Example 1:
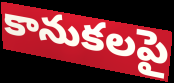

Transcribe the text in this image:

కానుకలపై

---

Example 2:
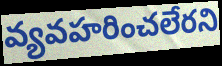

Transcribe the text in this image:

వ్యవహరించలేరని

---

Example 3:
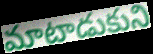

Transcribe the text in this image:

మాటాడుకుని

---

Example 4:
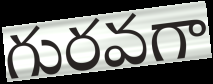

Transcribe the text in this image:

గురవగా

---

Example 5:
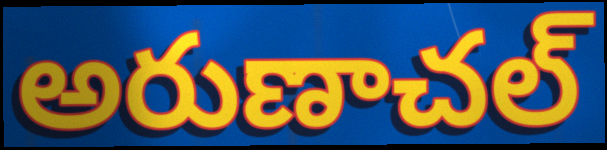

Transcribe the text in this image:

అరుణాచల్